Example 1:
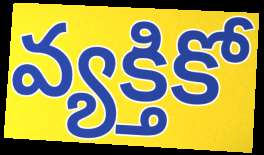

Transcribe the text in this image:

వ్యక్తికో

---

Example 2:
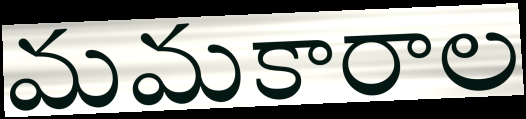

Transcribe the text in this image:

మమకారాల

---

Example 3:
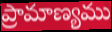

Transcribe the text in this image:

ప్రామాణ్యము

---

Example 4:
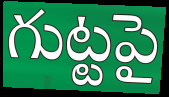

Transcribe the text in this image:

గుట్టపై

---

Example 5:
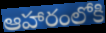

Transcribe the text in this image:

ఆహారంలోకి